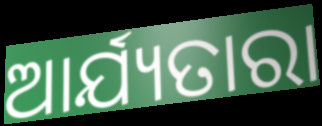
ଆର୍ଯ୍ୟତାରା